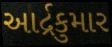
આર્દ્રકુમાર